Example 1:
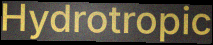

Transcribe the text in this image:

Hydrotropic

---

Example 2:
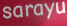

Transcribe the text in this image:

sarayu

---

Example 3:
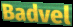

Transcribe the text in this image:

Badvel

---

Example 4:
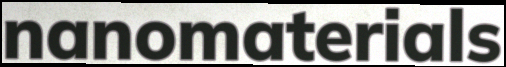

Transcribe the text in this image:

nanomaterials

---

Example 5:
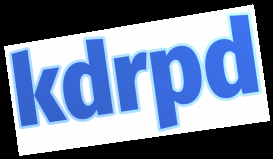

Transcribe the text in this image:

kdrpd